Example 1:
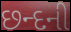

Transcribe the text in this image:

છન્દની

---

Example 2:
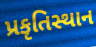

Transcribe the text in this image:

પ્રકૃતિસ્થાન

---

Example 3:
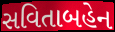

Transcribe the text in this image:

સવિતાબહેન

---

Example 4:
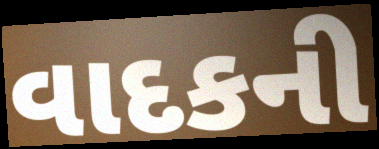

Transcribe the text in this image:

વાદકની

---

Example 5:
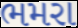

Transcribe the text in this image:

ભમરા